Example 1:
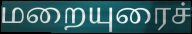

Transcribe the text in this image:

மறையுரைச்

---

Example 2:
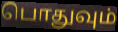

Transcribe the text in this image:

பொதுவும்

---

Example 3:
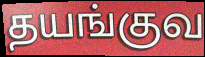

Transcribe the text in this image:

தயங்குவ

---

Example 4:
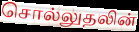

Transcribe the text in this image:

சொல்லுதலின்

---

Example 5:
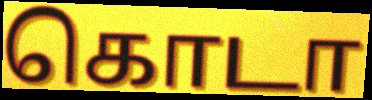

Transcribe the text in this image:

கொடா